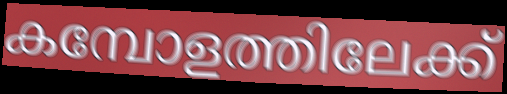
കമ്പോളത്തിലേക്ക്